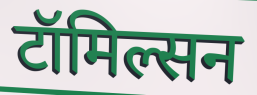
टॉमिल्सन